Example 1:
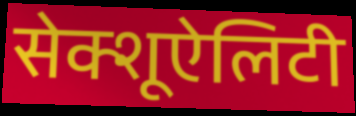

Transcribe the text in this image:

सेक्शूऐलिटी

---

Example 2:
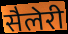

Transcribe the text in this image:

सैलेरी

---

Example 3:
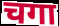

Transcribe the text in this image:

चगा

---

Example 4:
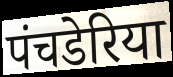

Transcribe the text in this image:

पंचडेरिया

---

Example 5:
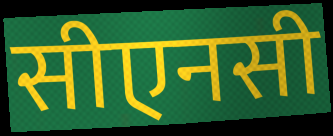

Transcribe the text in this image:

सीएनसी